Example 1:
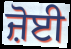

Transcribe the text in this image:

ਜ਼ੋਈ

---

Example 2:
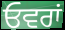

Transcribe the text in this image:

ਓਵਰਾਂ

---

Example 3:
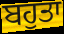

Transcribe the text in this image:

ਬਹੁਤਾ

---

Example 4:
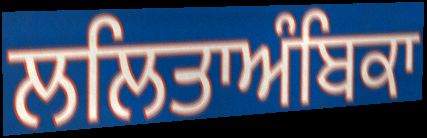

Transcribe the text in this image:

ਲਲਿਤਾਅੰਬਿਕਾ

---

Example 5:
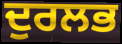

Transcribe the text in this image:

ਦੁਰਲਭ